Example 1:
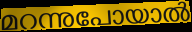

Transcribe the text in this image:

മറന്നുപോയാൽ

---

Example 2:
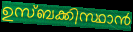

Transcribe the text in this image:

ഉസ്ബക്കിസ്ഥാൻ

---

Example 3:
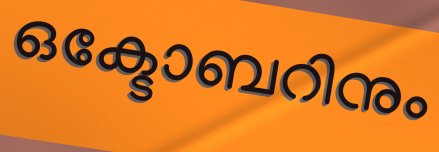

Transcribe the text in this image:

ഒക്ടോബറിനും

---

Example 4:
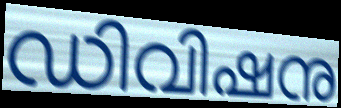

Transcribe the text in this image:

ഡിവിഷനു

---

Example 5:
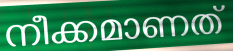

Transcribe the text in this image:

നീക്കമാണത്